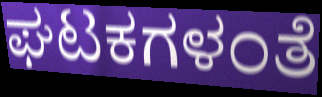
ಘಟಕಗಳಂತೆ